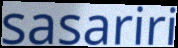
sasariri